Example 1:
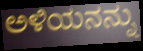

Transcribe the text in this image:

ಅಳಿಯನನ್ನು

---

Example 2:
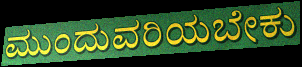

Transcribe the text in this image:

ಮುಂದುವರಿಯಬೇಕು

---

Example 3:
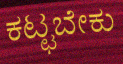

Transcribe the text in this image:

ಕಟ್ಟಬೇಕು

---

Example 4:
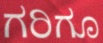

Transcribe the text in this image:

ಗರಿಗೂ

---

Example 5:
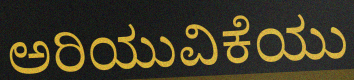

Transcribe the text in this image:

ಅರಿಯುವಿಕೆಯು